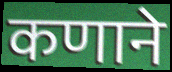
कणाने